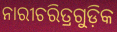
ନାରୀଚରିତ୍ରଗୁଡ଼ିକ